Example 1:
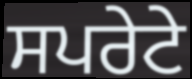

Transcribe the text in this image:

ਸਪਰੇਟੇ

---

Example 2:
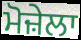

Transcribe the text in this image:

ਮੋਜ਼ੇਲਾ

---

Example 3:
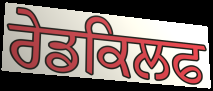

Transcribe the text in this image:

ਰੇਡਕਿਲਫ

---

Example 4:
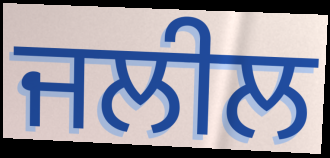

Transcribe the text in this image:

ਜਲੀਲ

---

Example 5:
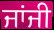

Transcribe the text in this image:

ਜਾਂਜੀ